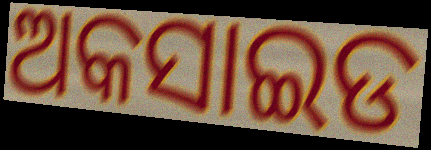
ଅକସାଇଡ